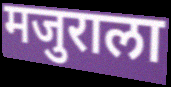
मजुराला